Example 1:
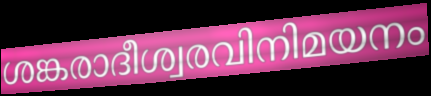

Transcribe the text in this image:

ശങ്കരാദീശ്വരവിനിമയനം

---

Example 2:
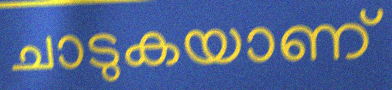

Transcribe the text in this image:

ചാടുകയാണ്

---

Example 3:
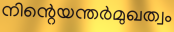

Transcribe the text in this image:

നിന്റെയന്തർമുഖത്വം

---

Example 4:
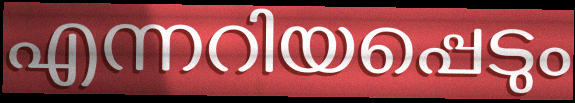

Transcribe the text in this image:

എന്നറിയപ്പെടും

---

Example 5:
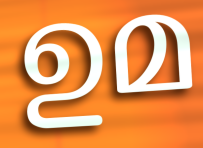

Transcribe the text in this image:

ഉമ